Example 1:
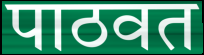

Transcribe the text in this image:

पाठवत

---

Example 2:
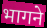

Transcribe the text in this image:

भागने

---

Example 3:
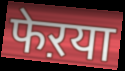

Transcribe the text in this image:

फेऱया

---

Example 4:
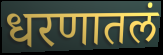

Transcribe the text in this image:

धरणातलं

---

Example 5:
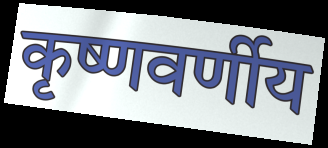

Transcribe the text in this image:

कृष्णवर्णीय